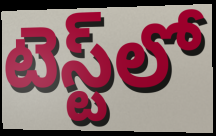
టెస్ట్‌లో